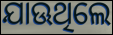
ଯାଊଥିଲେ